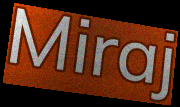
Miraj